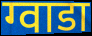
ग्वाडा